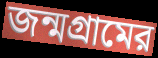
জন্মগ্রামের